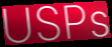
USPs